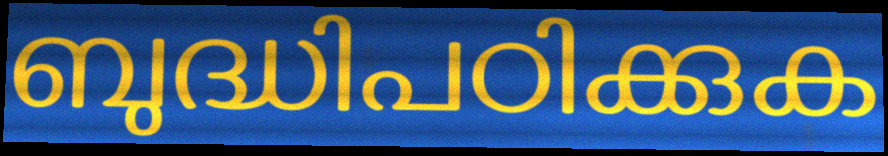
ബുദ്ധിപഠിക്കുക